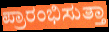
ಪ್ರಾರಂಭಿಸುತ್ತಾ